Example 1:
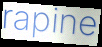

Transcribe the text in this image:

rapine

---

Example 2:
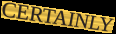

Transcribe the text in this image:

CERTAINLY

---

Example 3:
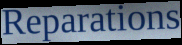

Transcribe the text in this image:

Reparations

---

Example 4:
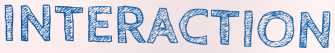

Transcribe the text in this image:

INTERACTION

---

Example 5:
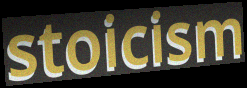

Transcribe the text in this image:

stoicism